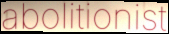
abolitionist